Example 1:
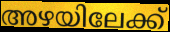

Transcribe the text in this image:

അഴയിലേക്ക്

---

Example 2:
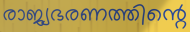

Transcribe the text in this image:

രാജ്യഭരണത്തിന്റെ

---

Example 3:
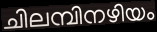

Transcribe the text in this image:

ചിലമ്പിനഴിയം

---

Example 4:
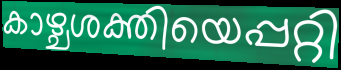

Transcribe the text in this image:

കാഴ്ചശക്തിയെപ്പറ്റി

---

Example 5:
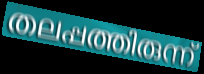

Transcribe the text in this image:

തലപ്പത്തിരുന്ന്